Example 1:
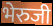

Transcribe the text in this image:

भेरुजी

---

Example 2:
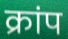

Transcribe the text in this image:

क्रांप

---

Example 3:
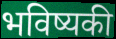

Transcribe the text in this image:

भविष्यकी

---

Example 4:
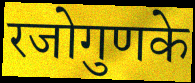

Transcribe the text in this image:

रजोगुणके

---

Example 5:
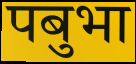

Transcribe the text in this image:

पबुभा